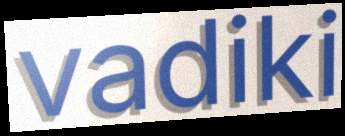
vadiki